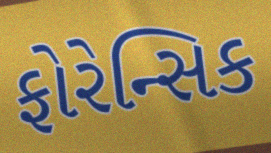
ફોરેન્સિક